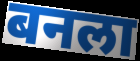
बनला